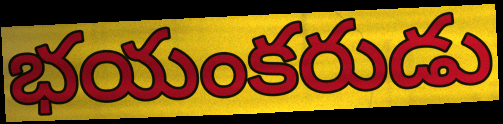
భయంకరుడు